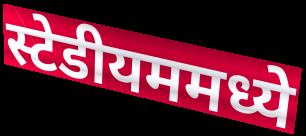
स्टेडीयममध्ये